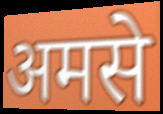
अमसे